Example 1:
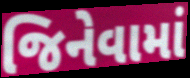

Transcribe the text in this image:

જિનેવામાં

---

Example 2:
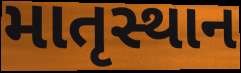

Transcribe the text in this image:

માતૃસ્થાન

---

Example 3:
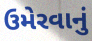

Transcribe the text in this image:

ઉમેરવાનું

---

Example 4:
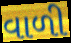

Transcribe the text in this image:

વાળી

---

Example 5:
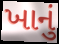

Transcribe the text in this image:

ખાનું